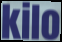
kilo